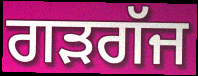
ਗਡ਼ਗੱਜ